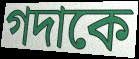
গদাকে